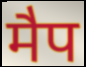
मैप